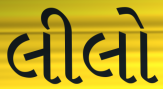
લીલો